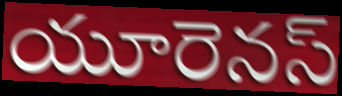
యూరెనస్